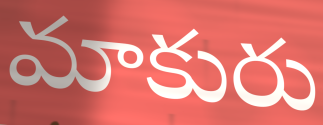
మాకురు